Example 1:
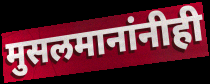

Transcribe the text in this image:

मुसलमानांनीही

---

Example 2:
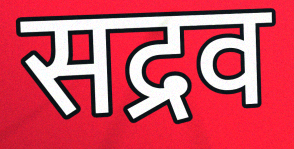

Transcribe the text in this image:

सद्रव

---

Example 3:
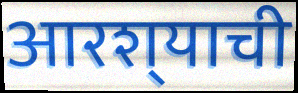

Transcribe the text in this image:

आरश्याची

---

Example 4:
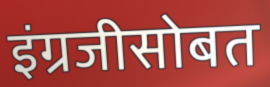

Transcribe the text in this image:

इंग्रजीसोबत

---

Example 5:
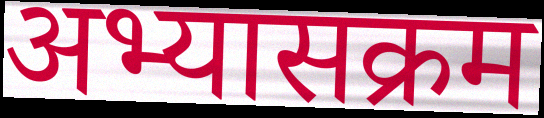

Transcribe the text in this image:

अभ्यासक्रम